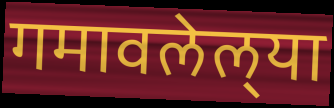
गमावलेल्या